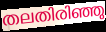
തലതിരിഞ്ഞു